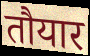
तौयार